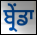
ਬ੍ਰੇਂਡਾ